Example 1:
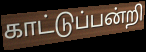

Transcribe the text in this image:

காட்டுப்பன்றி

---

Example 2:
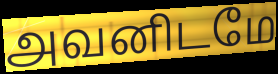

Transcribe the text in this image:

அவனிடமே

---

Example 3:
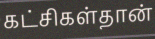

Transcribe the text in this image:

கட்சிகள்தான்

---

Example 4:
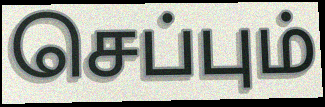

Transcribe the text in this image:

செப்பும்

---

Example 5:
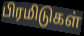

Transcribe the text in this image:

பிரமிடுகள்